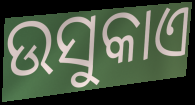
ଉସୁକାଏ